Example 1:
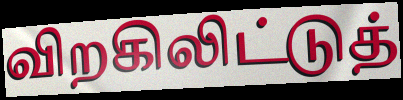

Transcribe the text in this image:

விறகிலிட்டுத்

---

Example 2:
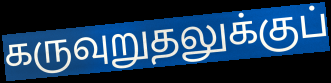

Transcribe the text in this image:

கருவுறுதலுக்குப்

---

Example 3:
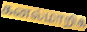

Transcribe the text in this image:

கனல்மாறிக்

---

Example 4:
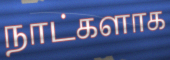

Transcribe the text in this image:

நாட்களாக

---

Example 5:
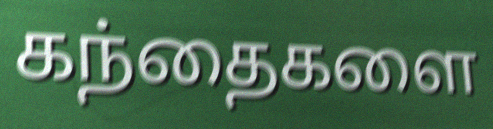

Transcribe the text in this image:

கந்தைகளை